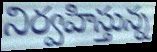
నిర్వహిస్తున్న